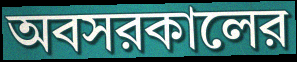
অবসরকালের